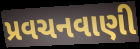
પ્રવચનવાણી